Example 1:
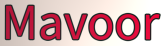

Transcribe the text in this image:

Mavoor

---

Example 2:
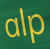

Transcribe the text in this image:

alp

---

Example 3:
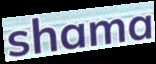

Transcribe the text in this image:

shama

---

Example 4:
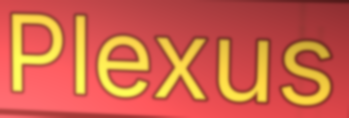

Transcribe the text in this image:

Plexus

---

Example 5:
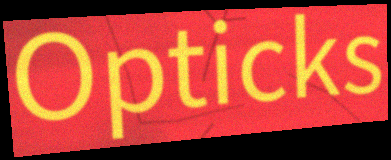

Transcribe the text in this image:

Opticks